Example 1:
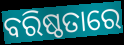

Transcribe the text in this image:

ବରିଷ୍ଠତାରେ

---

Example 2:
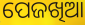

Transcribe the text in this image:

ପେଜଖିଆ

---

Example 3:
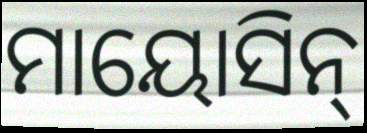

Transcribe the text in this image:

ମାୟୋସିନ୍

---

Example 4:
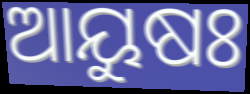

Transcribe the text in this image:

ଆୟୁଷଃ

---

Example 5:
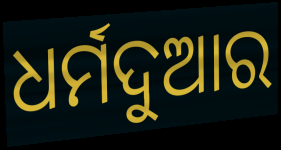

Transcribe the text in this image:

ଧର୍ମଦୁଆର